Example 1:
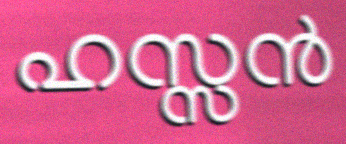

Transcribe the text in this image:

ഹസ്സൻ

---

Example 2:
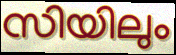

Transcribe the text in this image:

സിയിലും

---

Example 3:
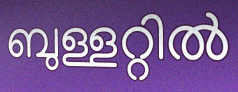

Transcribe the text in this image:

ബുള്ളറ്റിൽ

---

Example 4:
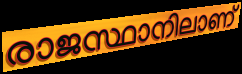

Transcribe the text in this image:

രാജസ്ഥാനിലാണ്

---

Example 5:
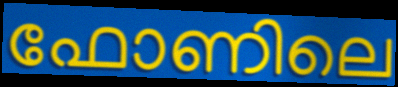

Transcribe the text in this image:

ഫോണിലെ